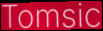
Tomsic